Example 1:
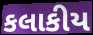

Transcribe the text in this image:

કલાકીય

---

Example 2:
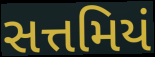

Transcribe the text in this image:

સત્તમિયં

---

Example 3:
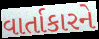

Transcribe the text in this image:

વાર્તાકારને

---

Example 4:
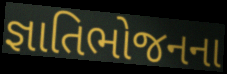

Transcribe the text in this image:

જ્ઞાતિભોજનના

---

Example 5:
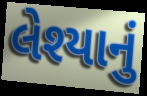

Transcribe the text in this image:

લેશ્યાનું